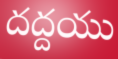
దద్దయు